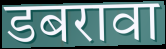
डबरावा